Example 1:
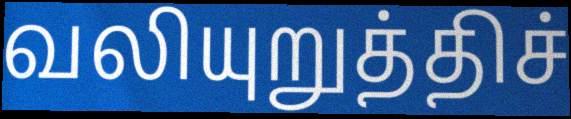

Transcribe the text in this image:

வலியுறுத்திச்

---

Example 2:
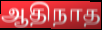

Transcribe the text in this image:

ஆதிநாத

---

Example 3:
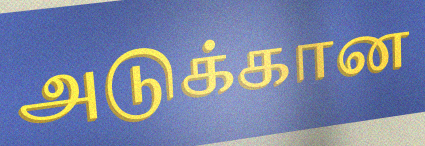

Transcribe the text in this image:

அடுக்கான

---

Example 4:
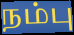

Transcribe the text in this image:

நம்பு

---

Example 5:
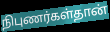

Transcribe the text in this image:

நிபுணர்கள்தான்